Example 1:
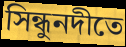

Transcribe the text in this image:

সিন্ধুনদীতে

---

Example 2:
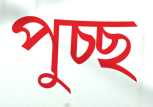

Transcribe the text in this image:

পুচ্ছ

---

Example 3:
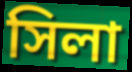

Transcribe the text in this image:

সিলা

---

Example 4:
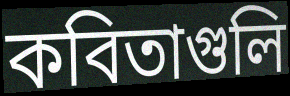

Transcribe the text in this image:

কবিতাগুলি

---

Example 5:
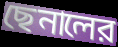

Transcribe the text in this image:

ছেনালের